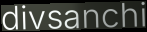
divsanchi